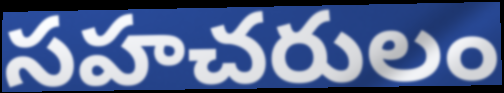
సహచరులం